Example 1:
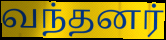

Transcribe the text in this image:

வந்தனர்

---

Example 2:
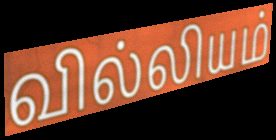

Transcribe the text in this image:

வில்லியம்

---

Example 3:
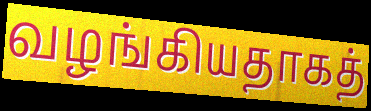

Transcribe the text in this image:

வழங்கியதாகத்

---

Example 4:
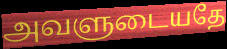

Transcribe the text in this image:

அவளுடையதே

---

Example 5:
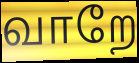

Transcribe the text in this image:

வாறே